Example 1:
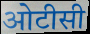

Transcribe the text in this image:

ओटीसी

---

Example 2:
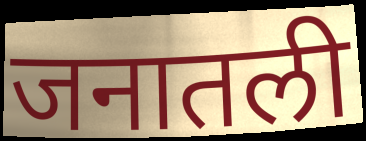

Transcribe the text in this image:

जनातली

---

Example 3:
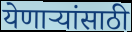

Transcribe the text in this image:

येणाऱ्यांसाठी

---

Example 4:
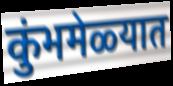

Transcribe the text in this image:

कुंभमेळ्यात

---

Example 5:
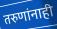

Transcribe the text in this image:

तरुणांनाही